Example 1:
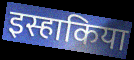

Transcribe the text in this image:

इस्हाकिया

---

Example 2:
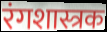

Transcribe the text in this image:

रंगशास्त्रक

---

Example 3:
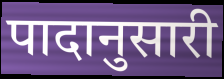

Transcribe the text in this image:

पादानुसारी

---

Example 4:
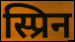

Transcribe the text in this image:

स्प्रिन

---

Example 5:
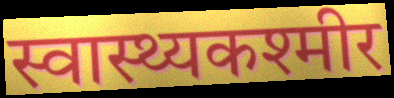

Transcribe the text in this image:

स्वास्थ्यकश्‍मीर